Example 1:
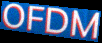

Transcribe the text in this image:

OFDM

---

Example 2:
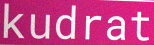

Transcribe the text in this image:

kudrat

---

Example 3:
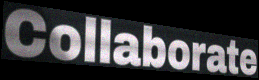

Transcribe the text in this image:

Collaborate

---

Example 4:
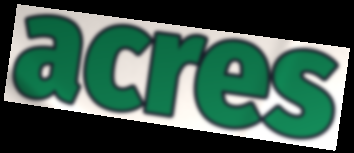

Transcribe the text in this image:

acres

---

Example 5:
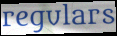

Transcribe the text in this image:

regulars